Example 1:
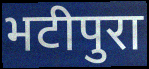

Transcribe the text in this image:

भटीपुरा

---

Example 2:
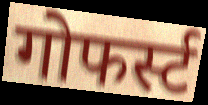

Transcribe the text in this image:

गोफर्स्ट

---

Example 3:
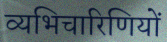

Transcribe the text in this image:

व्यभिचारिणियों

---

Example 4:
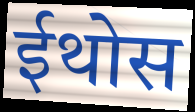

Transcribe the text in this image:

ईथोस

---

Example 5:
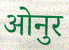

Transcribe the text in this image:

ओनुर